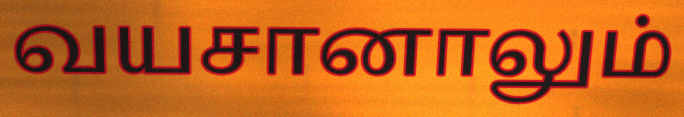
வயசானாலும்